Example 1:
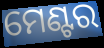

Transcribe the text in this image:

ମେଣ୍ଟର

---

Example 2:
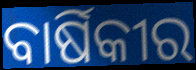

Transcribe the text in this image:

ବାର୍ଷିକୀର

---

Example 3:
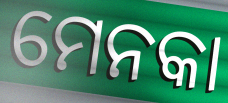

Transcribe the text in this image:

ମେନକା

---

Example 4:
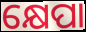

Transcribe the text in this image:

କ୍ଷେପା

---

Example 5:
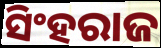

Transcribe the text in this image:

ସିଂହରାଜ